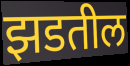
झडतील